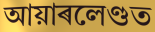
আয়াৰলেণ্ডত